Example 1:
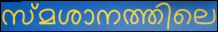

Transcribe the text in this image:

സ്മശാനത്തിലെ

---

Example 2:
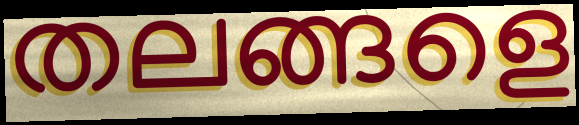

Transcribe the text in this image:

തലങ്ങളെ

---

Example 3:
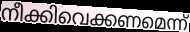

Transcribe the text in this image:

നീക്കിവെക്കണമെന്ന്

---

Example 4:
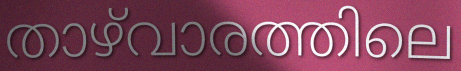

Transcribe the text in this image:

താഴ്‌വാരത്തിലെ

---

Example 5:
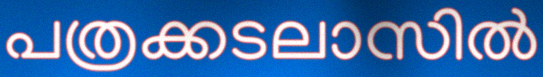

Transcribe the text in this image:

പത്രക്കടലാസിൽ